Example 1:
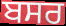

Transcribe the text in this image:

ਬਸਰ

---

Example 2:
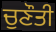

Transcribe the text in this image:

ਚੁਣੌਤੀ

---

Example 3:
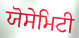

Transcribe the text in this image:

ਯੋਸੇਮਿਟੀ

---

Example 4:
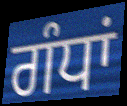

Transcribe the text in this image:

ਗੰਧਾਂ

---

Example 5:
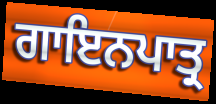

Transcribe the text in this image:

ਗਾਇਨਪਾਤ੍ਰ